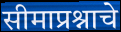
सीमाप्रश्नाचे